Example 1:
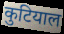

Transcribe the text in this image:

कुटियाल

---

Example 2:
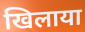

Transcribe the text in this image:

खिलाया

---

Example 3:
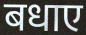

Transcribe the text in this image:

बधाए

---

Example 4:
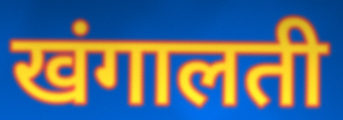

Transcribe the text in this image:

खंगालती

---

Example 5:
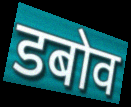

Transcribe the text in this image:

डबोव